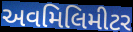
અવમિલિમીટર